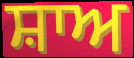
ਸ਼ਾਅ